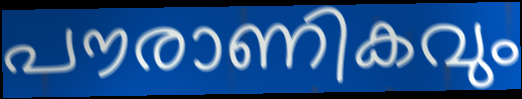
പൗരാണികവും